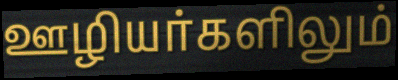
ஊழியர்களிலும்